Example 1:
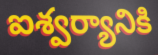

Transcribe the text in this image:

ఐశ్వర్యానికి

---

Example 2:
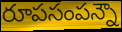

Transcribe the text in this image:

రూపసంపన్నౌ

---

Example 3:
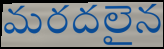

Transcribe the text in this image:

మరదలైన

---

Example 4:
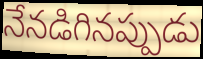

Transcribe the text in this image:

నేనడిగినప్పుడు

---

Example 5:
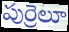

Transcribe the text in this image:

పుర్రెలూ